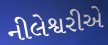
નીલેશ્વરીએ